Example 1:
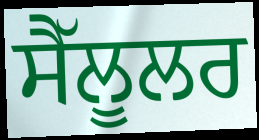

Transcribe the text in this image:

ਸੈੱਲੂਲਰ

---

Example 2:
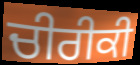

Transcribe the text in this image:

ਚੀਰੀਕੀ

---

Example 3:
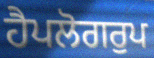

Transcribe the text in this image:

ਹੈਪਲੋਗਰੁਪ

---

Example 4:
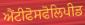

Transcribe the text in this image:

ਐਂਟੀਫੋਸਫੋਲਿਪੀਡ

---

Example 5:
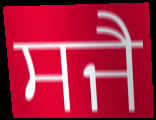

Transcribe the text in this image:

ਸਜੈ